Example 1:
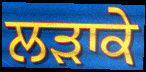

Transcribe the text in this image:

ਲੜਾਕੇ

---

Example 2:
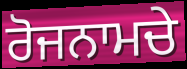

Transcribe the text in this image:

ਰੋਜਨਾਮਚੇ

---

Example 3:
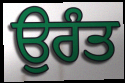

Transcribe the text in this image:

ਉਰੰਤ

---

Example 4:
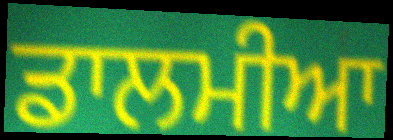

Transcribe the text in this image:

ਡਾਲਮੀਆ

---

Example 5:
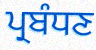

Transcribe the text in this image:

ਪ੍ਰਬੰਧਣ